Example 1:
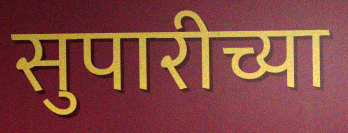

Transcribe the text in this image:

सुपारीच्या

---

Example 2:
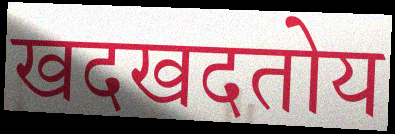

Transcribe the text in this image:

खदखदतोय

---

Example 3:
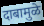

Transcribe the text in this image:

दाबामुळे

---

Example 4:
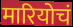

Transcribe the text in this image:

मारियोचं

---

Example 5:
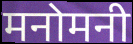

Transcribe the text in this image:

मनोमनी